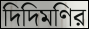
দিদিমণির